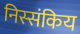
निस्संकिय